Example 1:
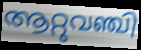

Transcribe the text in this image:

ആറ്റുവഞ്ചി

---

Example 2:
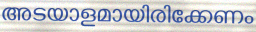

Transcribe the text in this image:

അടയാളമായിരിക്കേണം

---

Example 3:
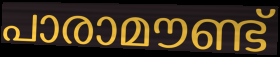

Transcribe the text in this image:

പാരാമൗണ്ട്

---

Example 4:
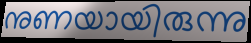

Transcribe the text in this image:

നുണയായിരുന്നു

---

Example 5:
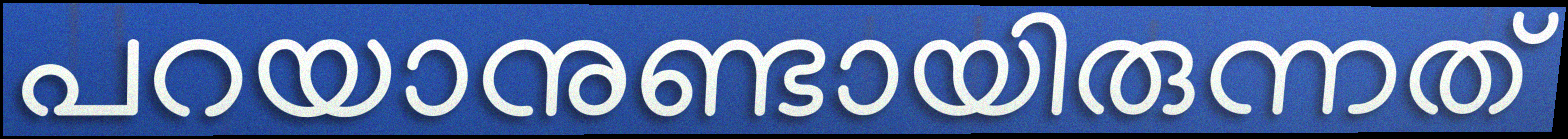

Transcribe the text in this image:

പറയാനുണ്ടായിരുന്നത്